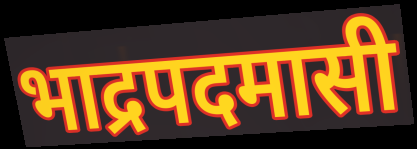
भाद्रपदमासी